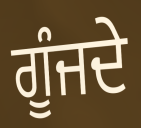
ਗੂੰਜਦੇ